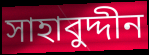
সাহাবুদ্দীন